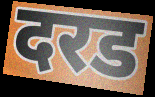
दरड